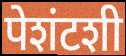
पेशंटशी